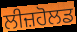
ਲੀਜ਼ਹੋਲਡ